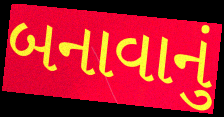
બનાવાનું